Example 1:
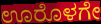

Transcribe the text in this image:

ಊರೊಳಗೇ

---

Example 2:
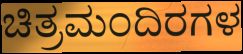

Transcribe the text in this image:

ಚಿತ್ರಮಂದಿರಗಳ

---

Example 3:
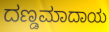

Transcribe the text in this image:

ದಣ್ಡಮಾದಾಯ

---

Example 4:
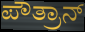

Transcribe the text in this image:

ಪೌತ್ರಾನ್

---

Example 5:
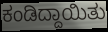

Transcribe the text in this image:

ಕಂಡಿದ್ದಾಯಿತು